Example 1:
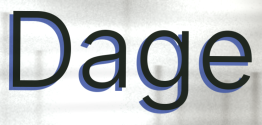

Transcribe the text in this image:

Dage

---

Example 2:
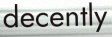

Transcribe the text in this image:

decently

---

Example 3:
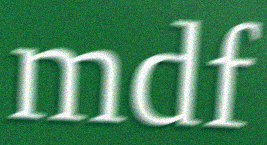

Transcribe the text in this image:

mdf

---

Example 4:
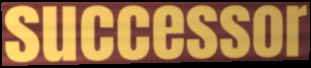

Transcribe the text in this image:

successor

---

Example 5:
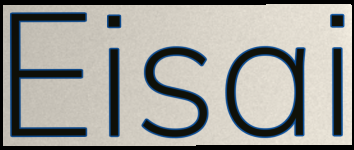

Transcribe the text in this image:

Eisai